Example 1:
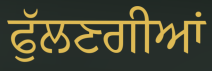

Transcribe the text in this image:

ਫੁੱਲਣਗੀਆਂ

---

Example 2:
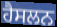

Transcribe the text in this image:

ਹੈਸਲਨ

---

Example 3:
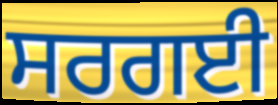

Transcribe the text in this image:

ਸਰਗਈ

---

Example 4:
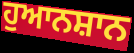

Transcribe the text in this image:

ਹੁਆਨਸ਼ਾਨ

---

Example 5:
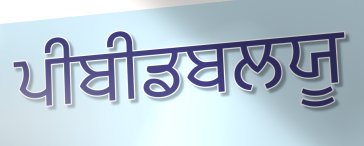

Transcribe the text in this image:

ਪੀਬੀਡਬਲਯੂ